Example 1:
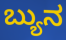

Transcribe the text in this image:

ಬ್ಯುನ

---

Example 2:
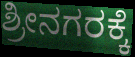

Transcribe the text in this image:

ಶ್ರೀನಗರಕ್ಕೆ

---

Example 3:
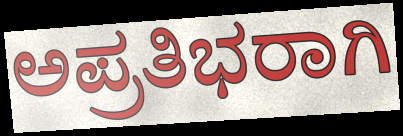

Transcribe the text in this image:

ಅಪ್ರತಿಭರಾಗಿ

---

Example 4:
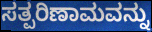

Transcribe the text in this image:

ಸತ್ಪರಿಣಾಮವನ್ನು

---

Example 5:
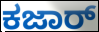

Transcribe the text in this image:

ಕಜಾರ್